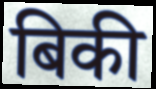
बिकी